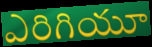
ఎరిగియూ